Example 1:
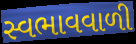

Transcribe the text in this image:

સ્વભાવવાળી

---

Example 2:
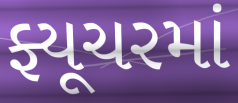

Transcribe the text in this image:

ફ્યૂચરમાં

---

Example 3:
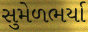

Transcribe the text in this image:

સુમેળભર્યા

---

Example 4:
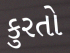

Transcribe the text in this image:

કુરતો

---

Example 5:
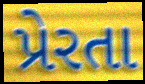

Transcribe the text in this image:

પ્રેરતા